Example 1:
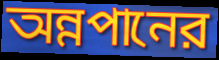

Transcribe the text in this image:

অন্নপানের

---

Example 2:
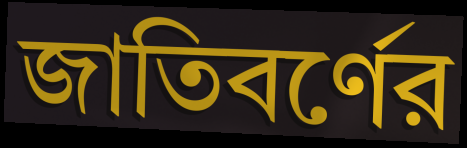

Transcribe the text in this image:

জাতিবর্ণের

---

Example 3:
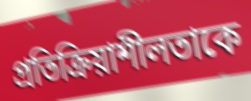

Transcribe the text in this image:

প্রতিক্রিয়াশীলতাকে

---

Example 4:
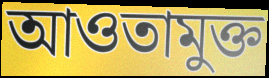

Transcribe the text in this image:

আওতামুক্ত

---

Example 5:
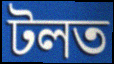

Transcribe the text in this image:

টলত